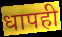
धापही